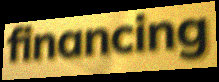
financing